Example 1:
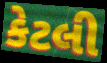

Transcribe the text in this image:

કેટલી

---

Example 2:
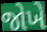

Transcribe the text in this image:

જોખે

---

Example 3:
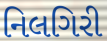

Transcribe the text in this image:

નિલગિરી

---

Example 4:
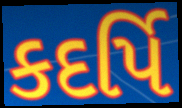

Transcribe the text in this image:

કદર્પિ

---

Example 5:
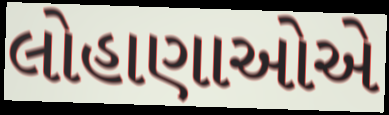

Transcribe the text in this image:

લોહાણાઓએ